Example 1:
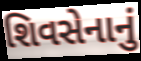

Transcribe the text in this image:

શિવસેનાનું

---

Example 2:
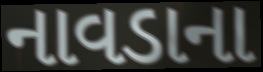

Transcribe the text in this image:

નાવડાના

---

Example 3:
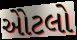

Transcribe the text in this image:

એોટલો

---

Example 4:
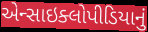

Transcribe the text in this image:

એન્સાઇક્લોપીડિયાનું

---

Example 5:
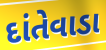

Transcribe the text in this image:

દાંતેવાડા